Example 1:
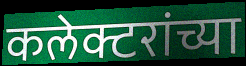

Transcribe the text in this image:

कलेक्टरांच्या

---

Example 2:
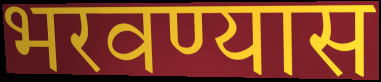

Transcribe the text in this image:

भरवण्यास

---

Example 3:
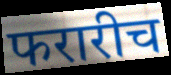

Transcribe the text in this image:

फरारीच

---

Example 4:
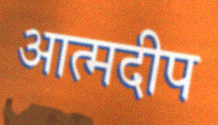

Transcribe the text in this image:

आत्मदीप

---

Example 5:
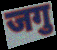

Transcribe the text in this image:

जगु